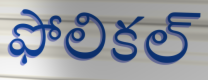
ఫోలికల్